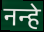
नन्हे